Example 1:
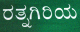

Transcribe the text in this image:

ರತ್ನಗಿರಿಯ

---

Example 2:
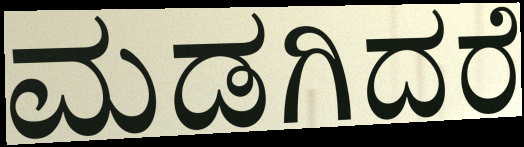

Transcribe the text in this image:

ಮಡಗಿದರೆ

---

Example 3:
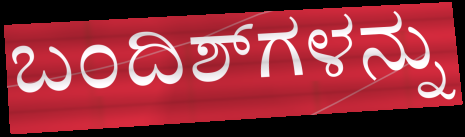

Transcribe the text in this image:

ಬಂದಿಶ್‌ಗಳನ್ನು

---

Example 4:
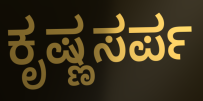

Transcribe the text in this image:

ಕೃಷ್ಣಸರ್ಪ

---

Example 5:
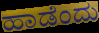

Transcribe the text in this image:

ಹಾಡೆಂದು